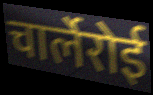
चार्लेरोई